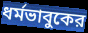
ধর্মভাবুকের